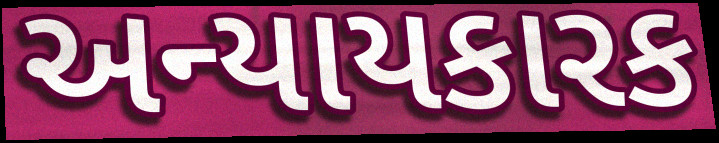
અન્યાયકારક